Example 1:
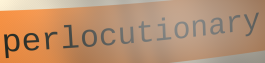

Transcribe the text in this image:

perlocutionary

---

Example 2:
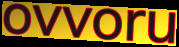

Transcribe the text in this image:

ovvoru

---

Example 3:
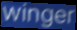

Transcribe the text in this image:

winger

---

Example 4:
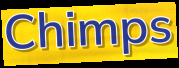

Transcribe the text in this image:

Chimps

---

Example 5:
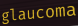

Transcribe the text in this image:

glaucoma